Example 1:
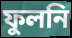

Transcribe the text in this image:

ফুলনি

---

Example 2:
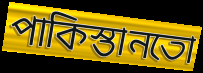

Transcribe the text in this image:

পাকিস্তানতো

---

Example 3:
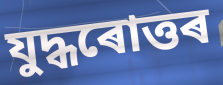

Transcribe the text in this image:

যুদ্ধৰোত্তৰ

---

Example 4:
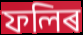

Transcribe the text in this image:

ফলিৰ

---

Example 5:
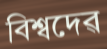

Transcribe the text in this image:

বিশ্বদেৱ